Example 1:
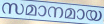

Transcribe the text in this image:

സമാനമായ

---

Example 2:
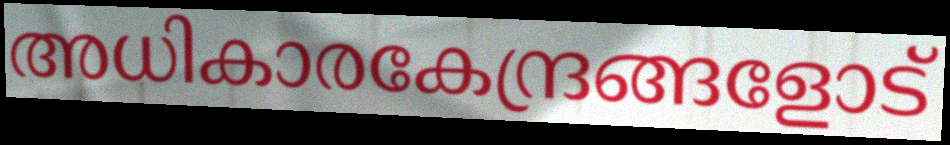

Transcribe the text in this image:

അധികാരകേന്ദ്രങ്ങളോട്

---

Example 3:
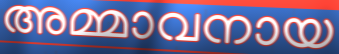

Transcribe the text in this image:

അമ്മാവനായ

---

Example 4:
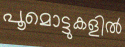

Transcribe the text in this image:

പൂമൊട്ടുകളിൽ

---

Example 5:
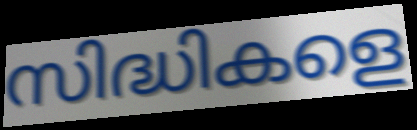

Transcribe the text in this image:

സിദ്ധികളെ